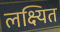
लक्ष्यित